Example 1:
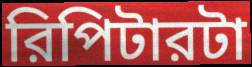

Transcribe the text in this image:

রিপিটারটা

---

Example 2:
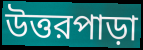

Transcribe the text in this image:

উত্তরপাড়া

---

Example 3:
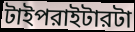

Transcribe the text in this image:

টাইপরাইটারটা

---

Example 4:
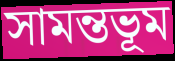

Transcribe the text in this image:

সামন্তভূম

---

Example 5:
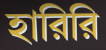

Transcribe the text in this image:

হারিরি